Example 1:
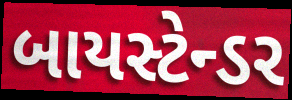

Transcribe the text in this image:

બાયસ્ટેન્ડર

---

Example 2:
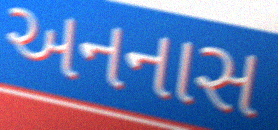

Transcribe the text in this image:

અનનાસ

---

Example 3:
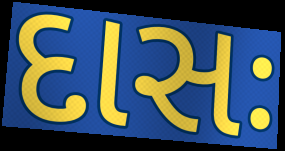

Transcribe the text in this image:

દાસઃ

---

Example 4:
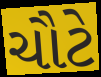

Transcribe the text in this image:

ચૌટે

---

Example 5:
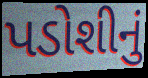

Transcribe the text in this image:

પડોશીનું